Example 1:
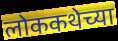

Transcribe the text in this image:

लोककथेच्या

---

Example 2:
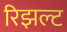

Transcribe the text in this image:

रिझल्ट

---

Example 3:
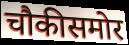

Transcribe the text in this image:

चौकीसमोर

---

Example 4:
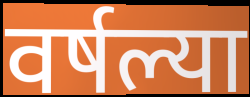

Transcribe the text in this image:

वर्षल्या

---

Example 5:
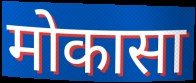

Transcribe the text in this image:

मोकासा